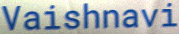
Vaishnavi